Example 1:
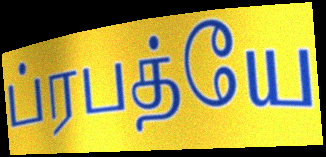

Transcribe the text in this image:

ப்ரபத்யே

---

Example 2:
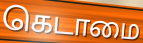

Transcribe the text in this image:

கெடாமை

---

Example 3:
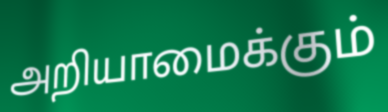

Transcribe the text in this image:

அறியாமைக்கும்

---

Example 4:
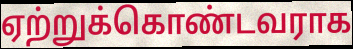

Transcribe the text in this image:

ஏற்றுக்கொண்டவராக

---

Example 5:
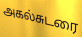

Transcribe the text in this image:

அகல்சுடரை